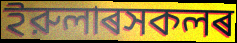
ইৰুলাৰসকলৰ